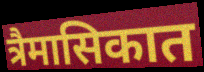
त्रैमासिकात